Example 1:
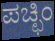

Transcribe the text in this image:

ಪಚ್ಛಿಂ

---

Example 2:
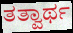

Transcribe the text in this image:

ತತ್ವಾರ್ಥ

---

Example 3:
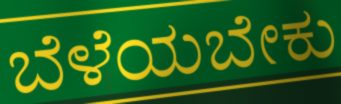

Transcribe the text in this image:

ಬೆಳೆಯಬೇಕು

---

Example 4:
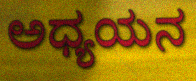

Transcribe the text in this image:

ಅಧ್ಯಯನ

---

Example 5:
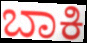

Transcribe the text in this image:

ಬಾಕಿ